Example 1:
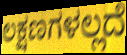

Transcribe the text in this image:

ಲಕ್ಷಣಗಳಲ್ಲದೆ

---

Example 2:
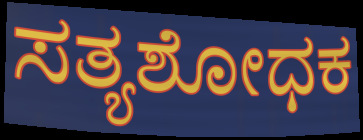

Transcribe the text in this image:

ಸತ್ಯಶೋಧಕ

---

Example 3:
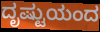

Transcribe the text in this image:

ದೃಷ್ಟುಯಂದ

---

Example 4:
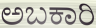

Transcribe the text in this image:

ಅಬಕಾರಿ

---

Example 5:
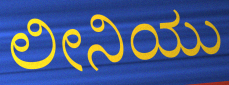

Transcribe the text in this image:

ಲೀನಿಯು